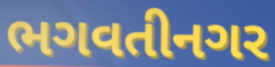
ભગવતીનગર